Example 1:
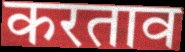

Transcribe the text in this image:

करताव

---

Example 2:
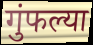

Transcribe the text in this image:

गुंफल्या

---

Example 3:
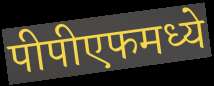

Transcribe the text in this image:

पीपीएफमध्ये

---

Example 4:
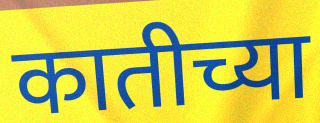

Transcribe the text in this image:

कातीच्या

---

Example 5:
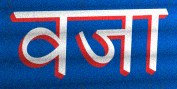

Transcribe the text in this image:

वजा